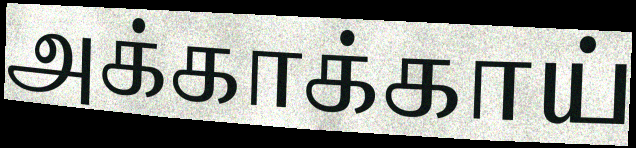
அக்காக்காய்